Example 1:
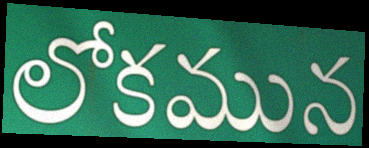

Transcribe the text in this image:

లోకమున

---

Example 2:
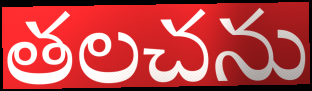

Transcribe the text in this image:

తలచను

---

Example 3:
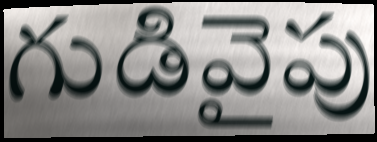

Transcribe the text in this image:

గుడివైపు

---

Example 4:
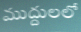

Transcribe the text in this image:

ముద్దులలో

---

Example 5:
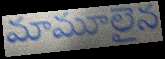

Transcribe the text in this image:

మామూలైన